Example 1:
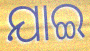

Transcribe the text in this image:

ଯାଇ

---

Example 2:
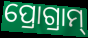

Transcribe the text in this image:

ପ୍ରୋଗ୍ରାମ୍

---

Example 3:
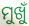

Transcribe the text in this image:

ମୁଖୁଁ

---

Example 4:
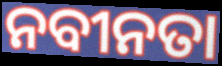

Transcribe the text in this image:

ନବୀନତା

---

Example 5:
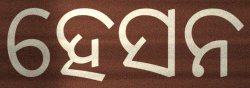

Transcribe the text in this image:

ହେସନ